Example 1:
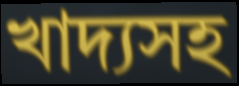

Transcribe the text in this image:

খাদ্যসহ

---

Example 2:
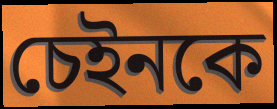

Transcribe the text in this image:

চেইনকে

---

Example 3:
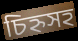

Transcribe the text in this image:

চিহ্নসহ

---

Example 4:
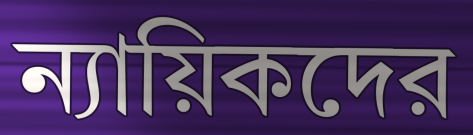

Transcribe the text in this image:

ন্যায়িকদের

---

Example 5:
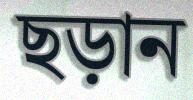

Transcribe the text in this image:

ছড়ান